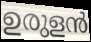
ഉരുളൻ